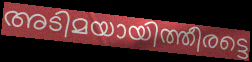
അടിമയായിത്തീരട്ടെ